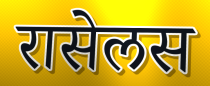
रासेलस